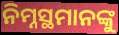
ନିମ୍ନସ୍ଥମାନଙ୍କୁ